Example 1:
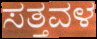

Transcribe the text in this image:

ಸತ್ತವಳ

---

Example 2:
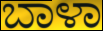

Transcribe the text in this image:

ಬಾಳಾ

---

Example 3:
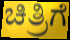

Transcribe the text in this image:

ಚಿತ್ರಿಗೆ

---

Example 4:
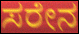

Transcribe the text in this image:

ಸರೇನ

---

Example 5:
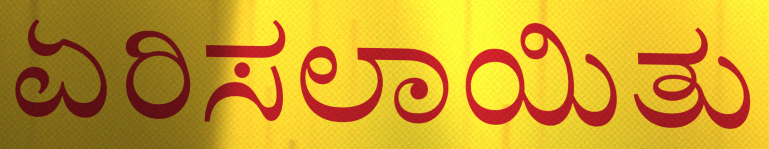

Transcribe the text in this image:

ಏರಿಸಲಾಯಿತು